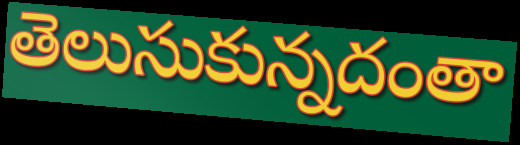
తెలుసుకున్నదంతా